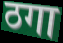
ठगा